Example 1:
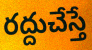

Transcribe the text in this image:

రద్దుచేస్తే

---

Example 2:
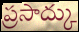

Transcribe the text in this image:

ప్రసాద్కు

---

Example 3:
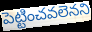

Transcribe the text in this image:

పెట్టించవలెనని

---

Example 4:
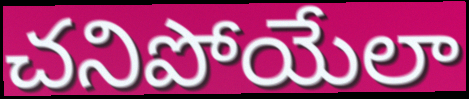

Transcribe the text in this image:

చనిపోయేలా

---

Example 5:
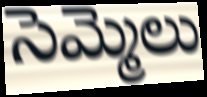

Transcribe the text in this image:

సెమ్మెలు